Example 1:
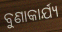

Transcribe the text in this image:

ବୁଣାକାର୍ଯ୍ୟ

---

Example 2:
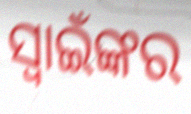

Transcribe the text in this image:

ସ୍ୱାଇଁଙ୍କର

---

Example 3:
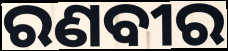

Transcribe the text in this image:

ରଣବୀର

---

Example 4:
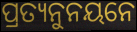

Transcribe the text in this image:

ପ୍ରତ୍ୟନୁନୟନେ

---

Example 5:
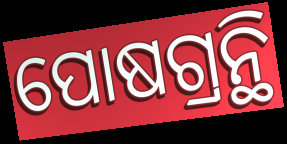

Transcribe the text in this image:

ପୋଷଗ୍ରନ୍ଥି